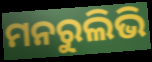
ମନରୁଲିଭି